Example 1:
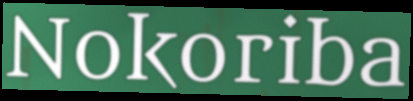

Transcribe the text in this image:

Nokoriba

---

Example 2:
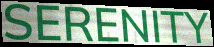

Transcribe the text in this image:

SERENITY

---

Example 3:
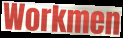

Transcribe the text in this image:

Workmen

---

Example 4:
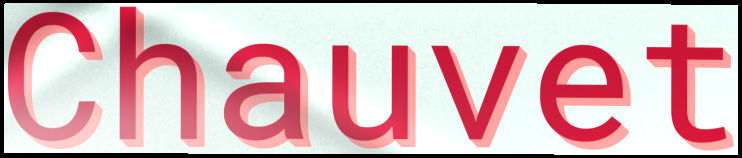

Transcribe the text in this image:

Chauvet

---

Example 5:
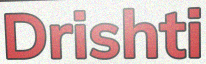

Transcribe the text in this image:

Drishti